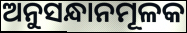
ଅନୁସନ୍ଧାନମୂଳକ